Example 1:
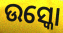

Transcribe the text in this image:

ଉସ୍କୋ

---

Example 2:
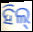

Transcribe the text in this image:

ହିଲ୍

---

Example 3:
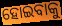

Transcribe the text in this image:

ହୋଇବାକୁ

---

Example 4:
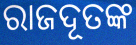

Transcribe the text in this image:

ରାଜଦୂତଙ୍କ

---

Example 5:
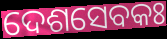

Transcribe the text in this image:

ଦେଶସେବକଃ